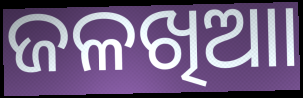
ଜଳଖିଆା